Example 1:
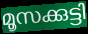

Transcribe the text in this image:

മൂസക്കുട്ടി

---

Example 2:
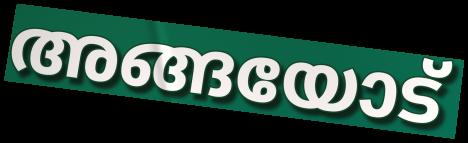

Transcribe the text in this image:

അങ്ങയോട്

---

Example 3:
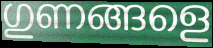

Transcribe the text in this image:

ഗുണങ്ങളെ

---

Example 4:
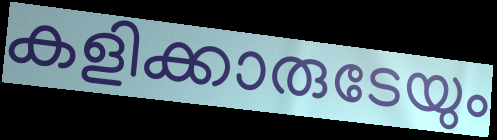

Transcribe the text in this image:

കളിക്കാരുടേയും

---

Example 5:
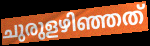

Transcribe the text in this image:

ചുരുളഴിഞ്ഞത്